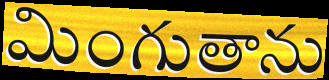
మింగుతాను